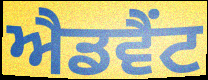
ਐਡਵੈਂਟ